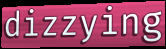
dizzying